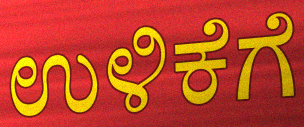
ಉಳಿಕೆಗೆ